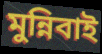
মুন্নিবাই